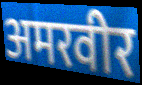
अमरवीर